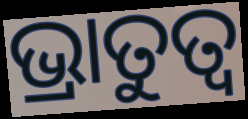
ଭ୍ରାତୁତ୍ଵ